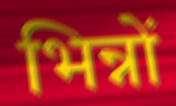
भिन्नों